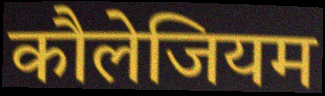
कौलेजियम